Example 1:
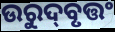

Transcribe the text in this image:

ଉରୁଦ୍‌ବୃତ୍ତଂ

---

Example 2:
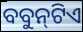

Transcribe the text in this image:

ବବୁନ୍‍ଟିଏ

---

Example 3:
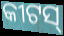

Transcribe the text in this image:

କୀଟସ୍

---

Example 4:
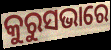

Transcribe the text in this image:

କୁରୁସଭାରେ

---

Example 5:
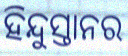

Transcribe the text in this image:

ହିନ୍ଦୁସ୍ତାନର